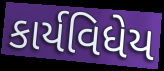
કાર્યવિધેય